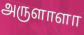
அருளாளா